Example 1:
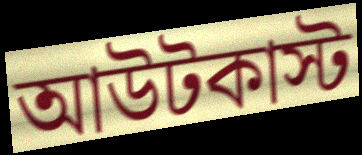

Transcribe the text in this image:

আউটকাস্ট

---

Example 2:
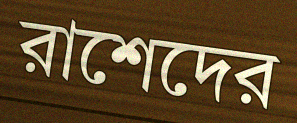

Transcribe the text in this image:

রাশেদের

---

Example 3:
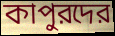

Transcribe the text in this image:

কাপুরদের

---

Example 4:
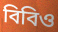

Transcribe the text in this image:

বিবিও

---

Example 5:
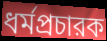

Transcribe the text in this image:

ধর্মপ্রচারক